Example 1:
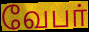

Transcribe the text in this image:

வேபர்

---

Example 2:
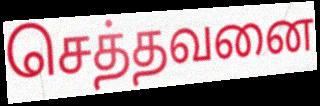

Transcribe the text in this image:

செத்தவனை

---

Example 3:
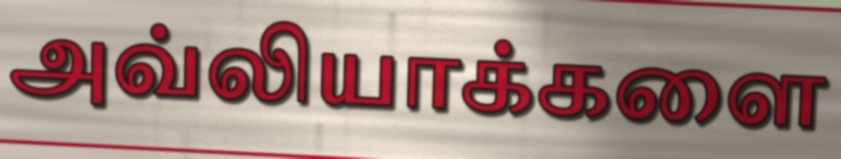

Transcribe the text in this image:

அவ்லியாக்களை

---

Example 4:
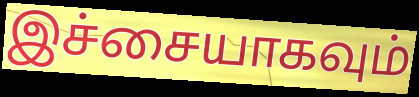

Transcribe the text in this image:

இச்சையாகவும்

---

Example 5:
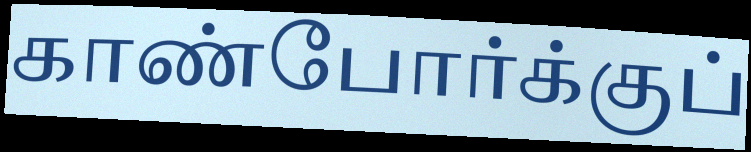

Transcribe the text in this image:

காண்போர்க்குப்